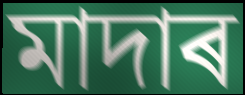
মাদাৰ